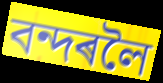
বন্দৰলৈ